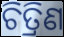
ଚିତ୍ରିଣ